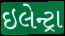
ઇલેન્ટ્રા